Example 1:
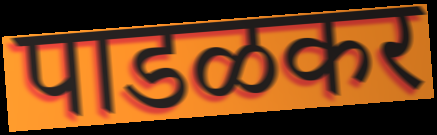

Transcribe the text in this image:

पाडळकर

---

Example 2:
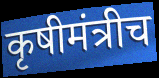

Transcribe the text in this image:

कृषीमंत्रीच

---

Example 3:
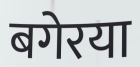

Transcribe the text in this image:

बगेरया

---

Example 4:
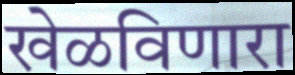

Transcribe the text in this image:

खेळविणारा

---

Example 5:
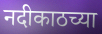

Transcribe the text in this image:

नदीकाठच्या